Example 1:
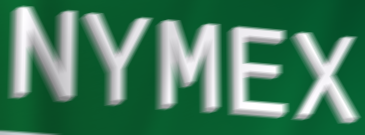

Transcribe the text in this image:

NYMEX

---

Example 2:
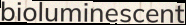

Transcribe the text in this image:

bioluminescent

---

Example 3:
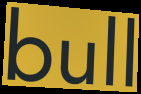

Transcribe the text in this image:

bull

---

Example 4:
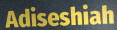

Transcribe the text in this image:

Adiseshiah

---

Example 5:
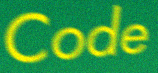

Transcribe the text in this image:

Code